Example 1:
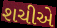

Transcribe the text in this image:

શચીએ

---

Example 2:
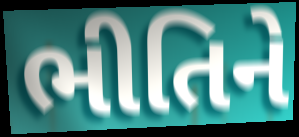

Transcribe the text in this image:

ભીતિને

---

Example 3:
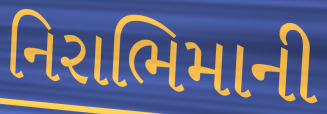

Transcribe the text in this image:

નિરાભિમાની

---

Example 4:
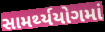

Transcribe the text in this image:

સામર્થ્યયોગમાં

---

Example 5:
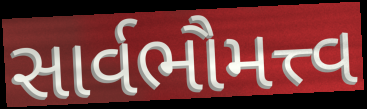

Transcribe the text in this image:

સાર્વભૌમત્ત્વ